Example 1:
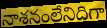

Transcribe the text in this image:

నాశనంలేనిదిగా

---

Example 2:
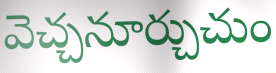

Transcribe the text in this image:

వెచ్చనూర్చుచుం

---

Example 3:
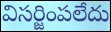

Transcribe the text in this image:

విసర్జింపలేదు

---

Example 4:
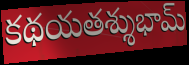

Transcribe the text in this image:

కథయతశ్శుభామ్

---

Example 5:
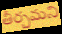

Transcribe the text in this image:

తీర్చమని